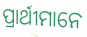
ପ୍ରାର୍ଥୀମାନେ